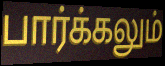
பார்க்கலும்